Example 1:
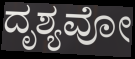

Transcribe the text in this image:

ದೃಶ್ಯವೋ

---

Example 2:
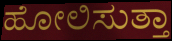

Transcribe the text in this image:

ಹೋಲಿಸುತ್ತಾ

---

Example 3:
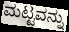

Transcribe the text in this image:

ಮಟ್ಟವನ್ನು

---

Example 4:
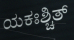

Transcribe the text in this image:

ಯಕಃಶ್ಚಿತ್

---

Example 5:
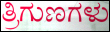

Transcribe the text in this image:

ತ್ರಿಗುಣಗಳು